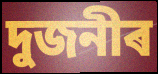
দুজনীৰ